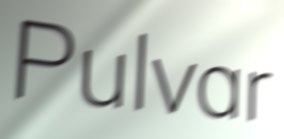
Pulvar